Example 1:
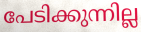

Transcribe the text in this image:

പേടിക്കുന്നില്ല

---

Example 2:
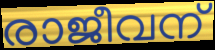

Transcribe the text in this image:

രാജീവന്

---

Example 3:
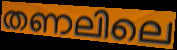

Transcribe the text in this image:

തണലിലെ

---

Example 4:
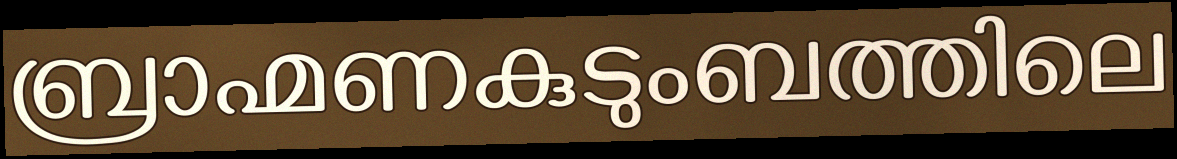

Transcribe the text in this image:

ബ്രാഹ്മണകുടുംബത്തിലെ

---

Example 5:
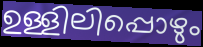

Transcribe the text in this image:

ഉള്ളിലിപ്പൊഴും